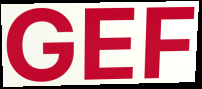
GEF